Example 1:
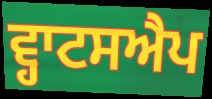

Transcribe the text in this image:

ਵ੍ਹਾਟਸਐਪ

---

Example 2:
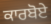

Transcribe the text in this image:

ਕਾਰਬੋਏ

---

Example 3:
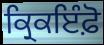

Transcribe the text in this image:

ਕ੍ਰਿਕਇੰਫ਼ੋ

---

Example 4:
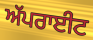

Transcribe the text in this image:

ਅੱਪਰਾਈਟ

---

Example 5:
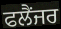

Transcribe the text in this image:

ਫਲੈਂਜਰ